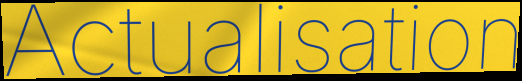
Actualisation